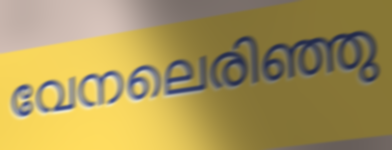
വേനലെരിഞ്ഞു